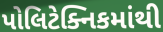
પોલિટેક્નિકમાંથી